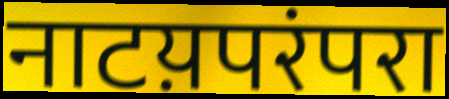
नाटय़परंपरा